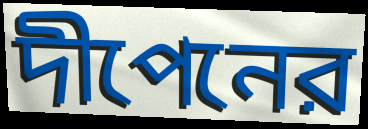
দীপেনের